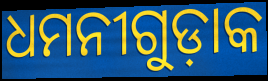
ଧମନୀଗୁଡ଼ାକ